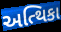
અત્થિકા